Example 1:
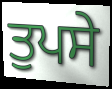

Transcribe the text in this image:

ਤੁਪਸੇ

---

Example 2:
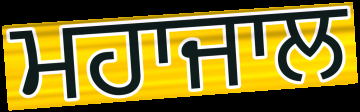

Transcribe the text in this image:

ਮਹਾਜਾਲ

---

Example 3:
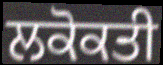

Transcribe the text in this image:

ਲਕੋਕਤੀ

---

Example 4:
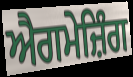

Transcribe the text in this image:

ਐਗਮੇਜ਼ਿੰਗ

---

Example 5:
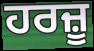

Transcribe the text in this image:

ਹਰਜ਼ੂ